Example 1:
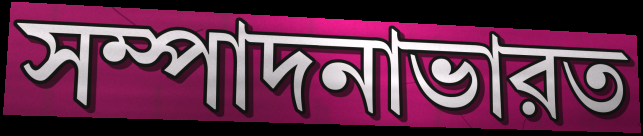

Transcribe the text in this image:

সম্পাদনাভারত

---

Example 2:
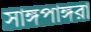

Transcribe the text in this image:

সাঙ্গপাঙ্গরা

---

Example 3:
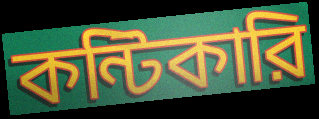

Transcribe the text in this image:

কন্টিকারি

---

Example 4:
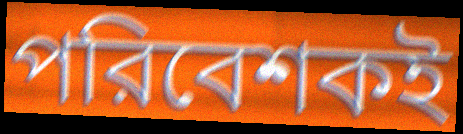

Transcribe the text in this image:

পরিবেশকই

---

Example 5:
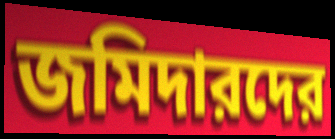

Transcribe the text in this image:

জমিদারদের